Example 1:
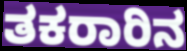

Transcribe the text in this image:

ತಕರಾರಿನ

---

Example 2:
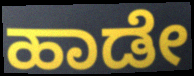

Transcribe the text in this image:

ಹಾಡೇ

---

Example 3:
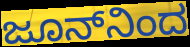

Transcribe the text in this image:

ಜೂನ್‌ನಿಂದ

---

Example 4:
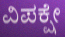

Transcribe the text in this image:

ವಿಪಕ್ಷೇ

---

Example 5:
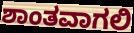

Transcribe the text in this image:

ಶಾಂತವಾಗಲಿ